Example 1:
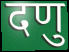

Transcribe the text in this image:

दणु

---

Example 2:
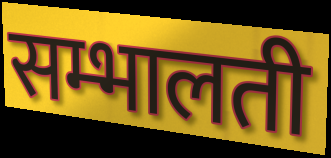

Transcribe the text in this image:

सम्भालती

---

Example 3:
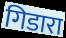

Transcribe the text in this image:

गिडारा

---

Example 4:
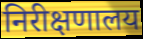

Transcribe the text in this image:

निरीक्षणालय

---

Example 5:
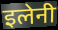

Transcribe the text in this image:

इलेनी